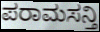
ಪರಾಮಸನ್ತಿ